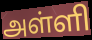
அள்ளி